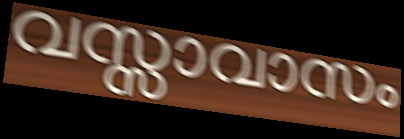
വസ്സാവാസം